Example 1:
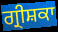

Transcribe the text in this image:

ਗ੍ਰੀਸ਼ਕਾ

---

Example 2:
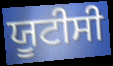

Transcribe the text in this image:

ਯੂਟੀਸੀ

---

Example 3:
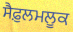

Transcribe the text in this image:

ਸੈਫ਼ੁਲਮਲੂਕ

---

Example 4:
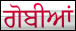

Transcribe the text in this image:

ਗੋਬੀਆਂ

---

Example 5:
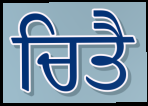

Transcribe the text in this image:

ਚਿਤੈ